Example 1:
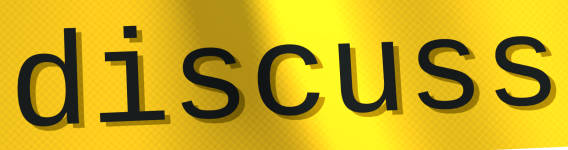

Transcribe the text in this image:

discuss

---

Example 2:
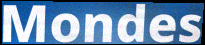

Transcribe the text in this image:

Mondes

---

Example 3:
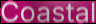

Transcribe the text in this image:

Coastal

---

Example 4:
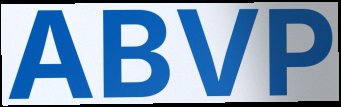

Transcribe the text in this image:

ABVP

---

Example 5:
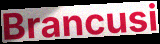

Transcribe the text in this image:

Brancusi